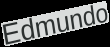
Edmundo